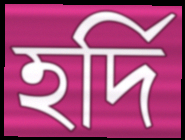
হৰ্দি